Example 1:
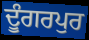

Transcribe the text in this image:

ਦੂੰਗਰਪੁਰ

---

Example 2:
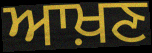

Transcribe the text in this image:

ਆਖ਼ਣ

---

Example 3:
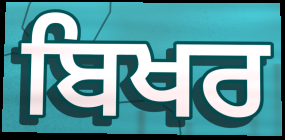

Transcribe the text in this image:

ਬਿਖਰ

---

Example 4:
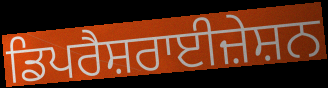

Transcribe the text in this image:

ਡਿਪਰੈਸ਼ਰਾਈਜ਼ੇਸ਼ਨ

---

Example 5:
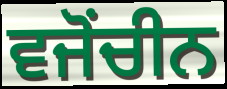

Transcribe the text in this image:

ਵਜੋਂਚੀਨ